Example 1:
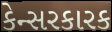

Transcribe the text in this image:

કેન્સરકારક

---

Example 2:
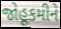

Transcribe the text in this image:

જોહૂકમીને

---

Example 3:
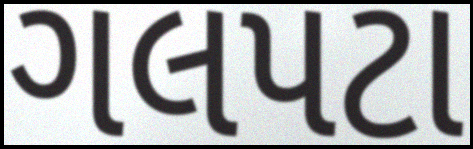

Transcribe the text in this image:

ગલપટા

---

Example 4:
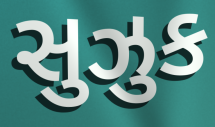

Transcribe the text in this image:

સુઝુક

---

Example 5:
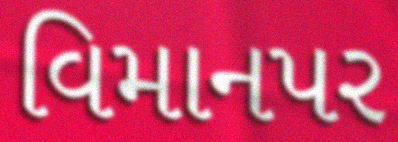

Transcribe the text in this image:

વિમાનપર